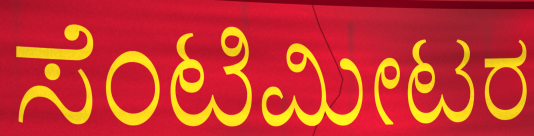
ಸೆಂಟಿಮೀಟರ